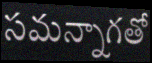
సమన్నాగతో